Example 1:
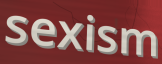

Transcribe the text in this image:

sexism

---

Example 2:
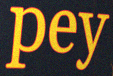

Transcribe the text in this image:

pey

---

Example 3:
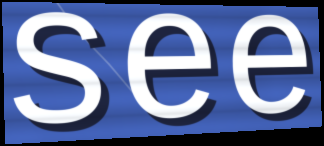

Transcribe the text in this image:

see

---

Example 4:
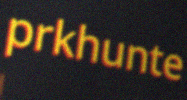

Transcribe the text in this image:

prkhunte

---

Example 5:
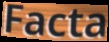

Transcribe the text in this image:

Facta